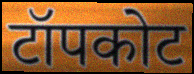
टॉपकोट